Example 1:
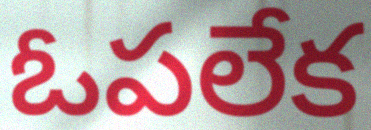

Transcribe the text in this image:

ఓపలేక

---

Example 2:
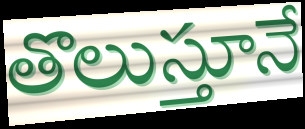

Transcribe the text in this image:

తొలుస్తూనే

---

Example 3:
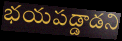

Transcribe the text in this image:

భయపడ్డాడని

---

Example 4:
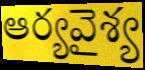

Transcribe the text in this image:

ఆర్యవైశ్య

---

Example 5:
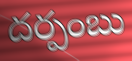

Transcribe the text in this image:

దర్పంబు